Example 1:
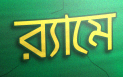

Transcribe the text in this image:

র‍্যামে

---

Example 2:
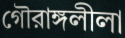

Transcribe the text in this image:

গৌরাঙ্গলীলা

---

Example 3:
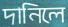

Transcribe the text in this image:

দানিলে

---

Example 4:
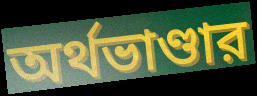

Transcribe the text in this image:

অর্থভাণ্ডার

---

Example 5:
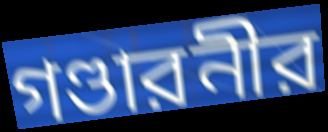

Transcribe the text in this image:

গণ্ডারনীর